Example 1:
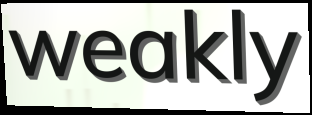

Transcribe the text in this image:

weakly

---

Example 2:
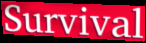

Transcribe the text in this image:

Survival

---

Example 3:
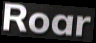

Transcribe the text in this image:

Roar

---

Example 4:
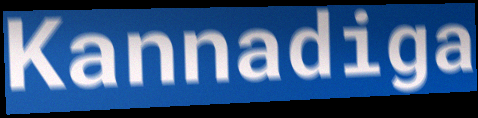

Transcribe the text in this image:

Kannadiga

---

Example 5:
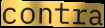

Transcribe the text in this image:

contra